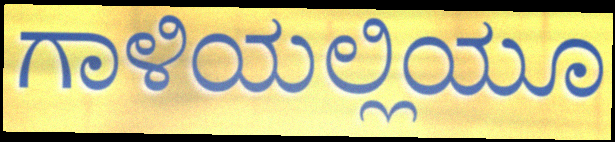
ಗಾಳಿಯಲ್ಲಿಯೂ